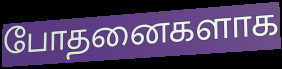
போதனைகளாக